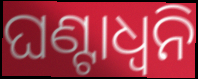
ଘଣ୍ଟାଧ୍ୱନି